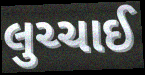
લુચ્ચાઈ